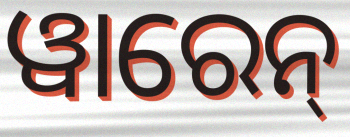
ୱାରେନ୍